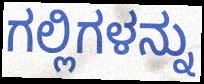
ಗಲ್ಲಿಗಳನ್ನು